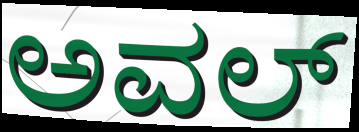
ಅವಲ್